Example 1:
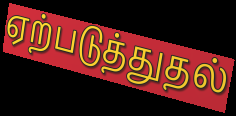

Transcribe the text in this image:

ஏற்படுத்துதல்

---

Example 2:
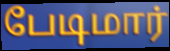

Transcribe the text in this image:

பேடிமார்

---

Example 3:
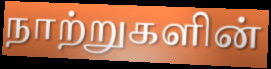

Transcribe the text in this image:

நாற்றுகளின்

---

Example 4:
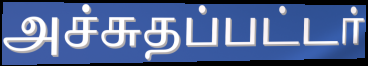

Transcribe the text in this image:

அச்சுதப்பட்டர்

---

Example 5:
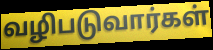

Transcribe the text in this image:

வழிபடுவார்கள்